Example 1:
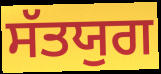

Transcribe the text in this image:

ਸੱਤਯੁਗ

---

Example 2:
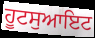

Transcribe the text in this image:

ਹੂਟਸੁਆਇਟ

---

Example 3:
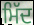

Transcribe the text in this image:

ਮਿੱਦ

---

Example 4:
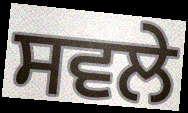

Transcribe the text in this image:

ਸਵਲੇ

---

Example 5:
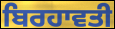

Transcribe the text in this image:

ਬਿਰਹਾਵਤੀ